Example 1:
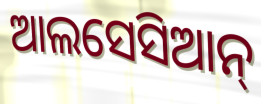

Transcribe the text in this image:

ଆଲସେସିଆନ୍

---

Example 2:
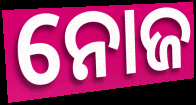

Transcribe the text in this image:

ନୋଜ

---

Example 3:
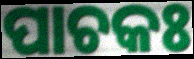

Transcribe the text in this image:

ପାଚକଃ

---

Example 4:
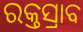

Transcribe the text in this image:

ରକ୍ତସ୍ରାବ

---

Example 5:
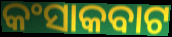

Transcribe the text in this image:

କଂସାକବାଟ